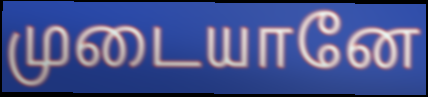
முடையானே